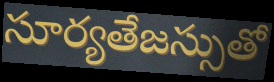
సూర్యతేజస్సుతో